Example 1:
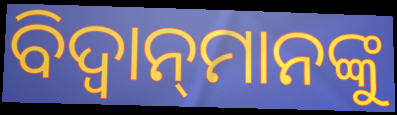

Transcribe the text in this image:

ବିଦ୍ଵାନ୍‌ମାନଙ୍କୁ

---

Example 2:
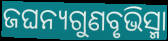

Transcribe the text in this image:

ଜଘନ୍ୟଗୁଣବୃଭିସ୍ମା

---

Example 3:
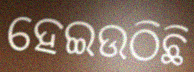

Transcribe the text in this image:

ହେଇଉଠିଛି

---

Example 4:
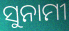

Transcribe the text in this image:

ସୁନାମୀ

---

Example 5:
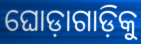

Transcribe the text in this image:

ଘୋଡ଼ାଗାଡ଼ିକୁ